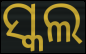
ସ୍କଲ